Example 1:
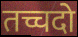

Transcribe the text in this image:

तच्चदो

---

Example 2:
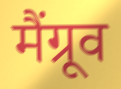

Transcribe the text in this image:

मैंग्रूव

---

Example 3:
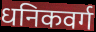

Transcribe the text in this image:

धनिकवर्ग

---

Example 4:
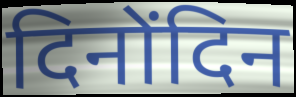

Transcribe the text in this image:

दिनोंदिन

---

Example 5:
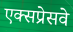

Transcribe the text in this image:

एक्सप्रेसवे